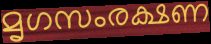
മൃഗസംരക്ഷണ